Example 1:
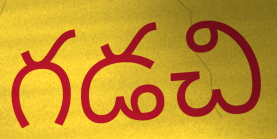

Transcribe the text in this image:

గడచి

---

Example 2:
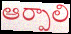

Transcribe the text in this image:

ఆర్పాలి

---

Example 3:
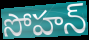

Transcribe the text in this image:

సోహన్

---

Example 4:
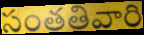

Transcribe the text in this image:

సంతతివారి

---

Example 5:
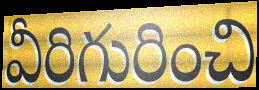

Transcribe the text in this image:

వీరిగురించి